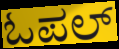
ಓಪಲ್